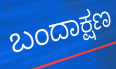
ಬಂದಾಕ್ಷಣ